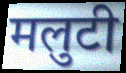
मलुटी